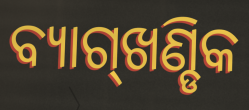
ବ୍ୟାଗ୍‌ଖଣ୍ଡିକ